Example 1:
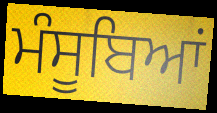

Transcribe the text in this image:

ਮੰਸੂਬਿਆਂ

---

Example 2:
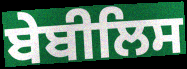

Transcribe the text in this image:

ਬੇਬੀਲਿਸ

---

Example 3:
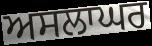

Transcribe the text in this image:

ਅਸਲਾਘਰ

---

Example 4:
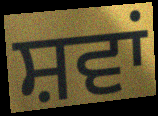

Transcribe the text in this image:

ਸ਼ਵਾਂ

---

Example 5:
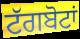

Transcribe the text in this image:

ਟੱਗਬੋਟਾਂ